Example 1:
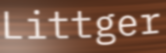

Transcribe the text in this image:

Littger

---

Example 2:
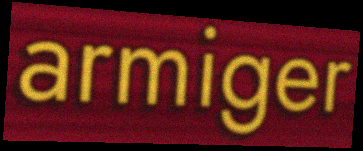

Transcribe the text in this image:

armiger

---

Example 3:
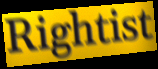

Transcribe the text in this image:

Rightist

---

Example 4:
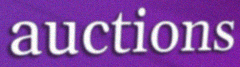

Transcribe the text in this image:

auctions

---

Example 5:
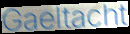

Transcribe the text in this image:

Gaeltacht